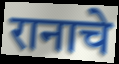
रानाचे